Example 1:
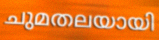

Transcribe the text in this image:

ചുമതലയായി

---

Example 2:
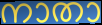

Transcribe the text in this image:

നാതാ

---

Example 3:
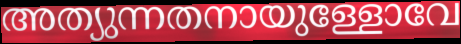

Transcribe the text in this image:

അത്യുന്നതനായുള്ളോവേ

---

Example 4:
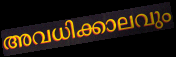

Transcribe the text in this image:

അവധിക്കാലവും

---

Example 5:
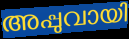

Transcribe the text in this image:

അപ്പുവായി